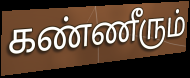
கண்ணீரும்